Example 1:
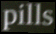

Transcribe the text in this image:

pills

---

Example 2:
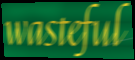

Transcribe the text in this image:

wasteful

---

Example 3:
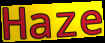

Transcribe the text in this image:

Haze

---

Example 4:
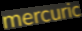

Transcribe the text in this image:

mercuric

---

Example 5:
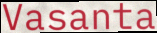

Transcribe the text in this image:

Vasanta